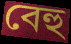
বেহু